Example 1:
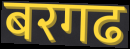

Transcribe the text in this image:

बरगढ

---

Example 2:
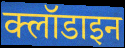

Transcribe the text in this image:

क्लॉडाइन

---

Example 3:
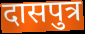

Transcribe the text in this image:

दासपुत्र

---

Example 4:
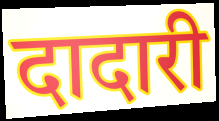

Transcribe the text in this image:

दादारी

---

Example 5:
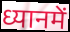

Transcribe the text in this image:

ध्यानमें